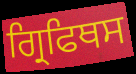
ਗ੍ਰਿਫਿਥਸ